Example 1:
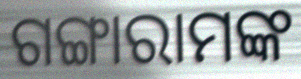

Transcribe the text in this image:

ଗଙ୍ଗାରାମଙ୍କ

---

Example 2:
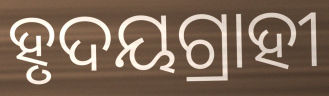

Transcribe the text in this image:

ହୃଦୟଗ୍ରାହୀ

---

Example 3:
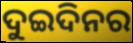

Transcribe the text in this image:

ଦୁଇଦିନର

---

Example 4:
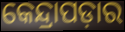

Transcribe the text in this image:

କେନ୍ଦ୍ରାପଡ଼ାର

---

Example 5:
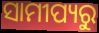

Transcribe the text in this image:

ସାମୀପ୍ୟରୁ